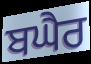
ਬਘੈਰ